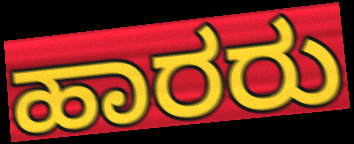
ಹಾರರು